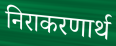
निराकरणार्थ